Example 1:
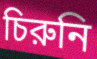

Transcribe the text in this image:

চিরুনি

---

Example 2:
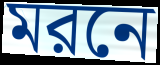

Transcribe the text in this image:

মরনে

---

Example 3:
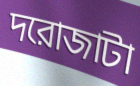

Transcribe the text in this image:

দরোজাটা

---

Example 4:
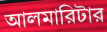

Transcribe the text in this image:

আলমারিটার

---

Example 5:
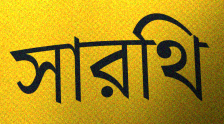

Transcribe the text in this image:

সারথি